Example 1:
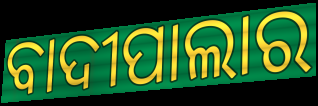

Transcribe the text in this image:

ବାଦୀପାଲାର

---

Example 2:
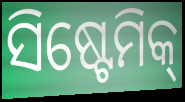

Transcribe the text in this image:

ସିଷ୍ଟେମିକ୍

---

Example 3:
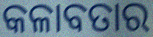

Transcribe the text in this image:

କଳାବତାର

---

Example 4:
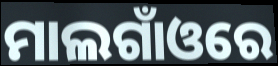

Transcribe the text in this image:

ମାଲଗାଁଓରେ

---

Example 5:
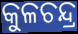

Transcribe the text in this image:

କୁଳଚନ୍ଦ୍ର